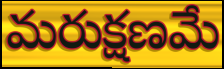
మరుక్షణమే